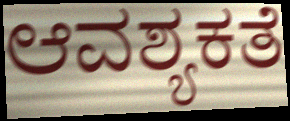
ಆವಶ್ಯಕತೆ